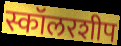
स्कॉलरशीप